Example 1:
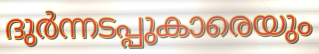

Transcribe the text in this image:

ദുർന്നടപ്പുകാരെയും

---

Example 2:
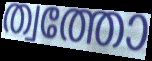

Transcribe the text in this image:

ത്വത്തോ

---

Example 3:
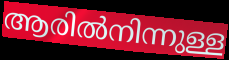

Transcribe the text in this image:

ആരിൽനിന്നുള്ള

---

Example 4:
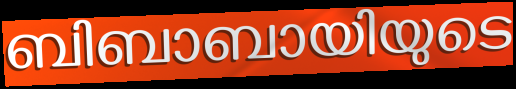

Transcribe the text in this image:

ബിബാബായിയുടെ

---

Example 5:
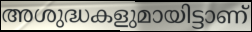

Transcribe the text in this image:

അശുദ്ധകളുമായിട്ടാണ്